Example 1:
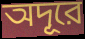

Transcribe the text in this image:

অদূরে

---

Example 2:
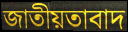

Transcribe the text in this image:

জাতীয়তাবাদ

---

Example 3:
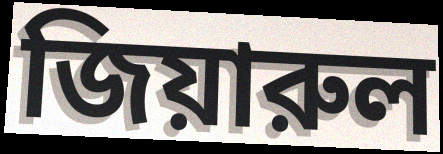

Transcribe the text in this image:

জিয়ারুল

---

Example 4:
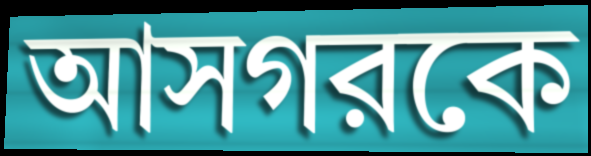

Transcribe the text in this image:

আসগরকে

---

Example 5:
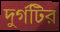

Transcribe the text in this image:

দুর্গটির